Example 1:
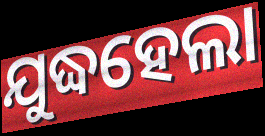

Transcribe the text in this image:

ଯୁଦ୍ଧହେଲା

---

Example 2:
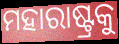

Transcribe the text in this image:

ମହାରାଷ୍ଟ୍ରକୁ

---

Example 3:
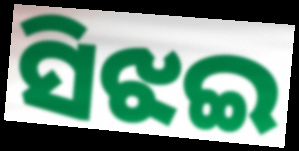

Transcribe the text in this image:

ସିଝଇ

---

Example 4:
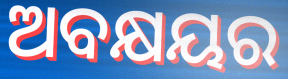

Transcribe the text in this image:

ଅବକ୍ଷୟର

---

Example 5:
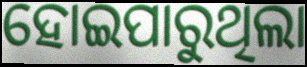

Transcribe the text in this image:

ହୋଇପାରୁଥିଲା